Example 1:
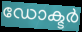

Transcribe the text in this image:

ഡോക്ടർ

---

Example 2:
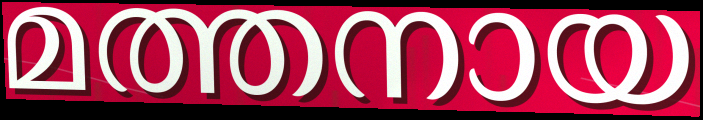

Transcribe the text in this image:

മത്തനായ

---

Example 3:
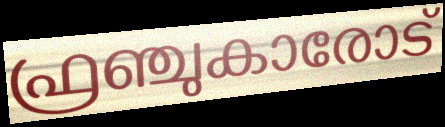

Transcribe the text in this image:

ഫ്രഞ്ചുകാരോട്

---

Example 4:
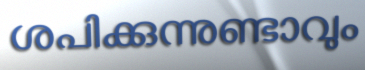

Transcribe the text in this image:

ശപിക്കുന്നുണ്ടാവും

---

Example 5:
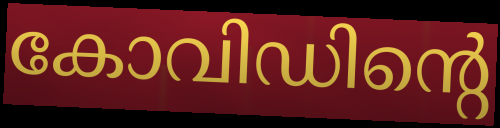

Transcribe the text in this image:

കോവിഡിന്റെ